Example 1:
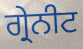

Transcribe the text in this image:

ਗ੍ਰੇਨੀਟ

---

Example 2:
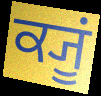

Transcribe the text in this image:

ਕ੍ਯੂਂ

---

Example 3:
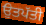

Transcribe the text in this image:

ਉਤਪੱਤੀ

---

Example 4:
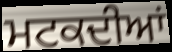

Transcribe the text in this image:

ਮਟਕਦੀਆਂ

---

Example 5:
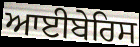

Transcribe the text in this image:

ਆਈਬੇਰਿਸ